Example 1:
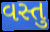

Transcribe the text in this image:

વસ્તુ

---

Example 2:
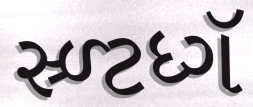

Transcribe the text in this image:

સ્ર્ળ્ટધ્ગૅ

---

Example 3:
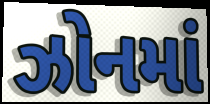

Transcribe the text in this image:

ઝોનમાં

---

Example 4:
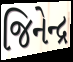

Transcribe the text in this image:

જિનેન્દ્ર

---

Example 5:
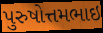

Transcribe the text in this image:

પુરુષોત્તમભાઇ